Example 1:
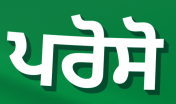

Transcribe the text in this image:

ਪਰੋਸੋ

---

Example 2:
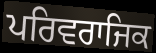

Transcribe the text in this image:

ਪਰਿਵਰਾਜਿਕ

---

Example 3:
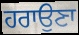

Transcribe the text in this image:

ਹਰਾਉਣਾ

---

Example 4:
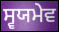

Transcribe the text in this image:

ਸ੍ਵਯਮੇਵ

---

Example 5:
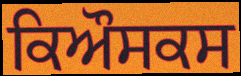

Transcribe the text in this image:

ਕਿਔਸਕਸ